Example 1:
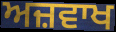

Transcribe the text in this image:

ਅਜ਼ਵਾਖ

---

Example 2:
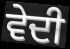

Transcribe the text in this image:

ਵੇਦੀ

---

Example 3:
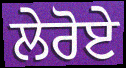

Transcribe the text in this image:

ਲੇਰੋਏ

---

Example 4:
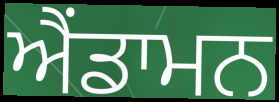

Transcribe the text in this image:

ਐਂਡਾਮਨ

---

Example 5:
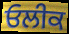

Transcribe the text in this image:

ਓਲੀਕ